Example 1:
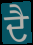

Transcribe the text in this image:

ਦੈ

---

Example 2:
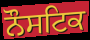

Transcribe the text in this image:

ਨੌਸਟਿਕ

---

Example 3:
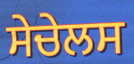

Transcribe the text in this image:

ਸੇਚੇਲਸ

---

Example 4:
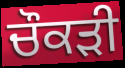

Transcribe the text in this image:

ਚੌਕੜੀ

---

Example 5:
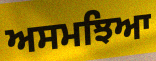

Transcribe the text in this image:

ਅਸਮਝਿਆ